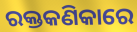
ରକ୍ତକଣିକାରେ